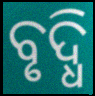
ବୃଦ୍ଧି